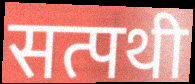
सत्पथी